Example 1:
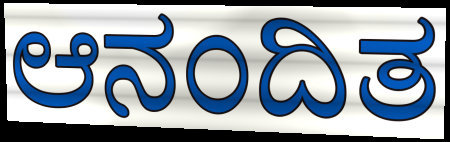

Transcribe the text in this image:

ಆನಂದಿತ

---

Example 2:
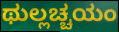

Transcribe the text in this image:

ಥುಲ್ಲಚ್ಚಯಂ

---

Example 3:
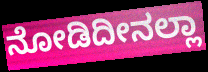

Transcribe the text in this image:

ನೋಡಿದೀನಲ್ಲಾ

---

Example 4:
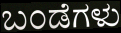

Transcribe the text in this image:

ಬಂಡೆಗಳು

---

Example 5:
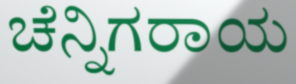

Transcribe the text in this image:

ಚೆನ್ನಿಗರಾಯ